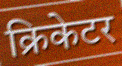
क्रिकेटर